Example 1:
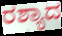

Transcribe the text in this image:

ರಶ್ಯಾದ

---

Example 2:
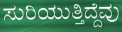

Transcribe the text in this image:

ಸುರಿಯುತ್ತಿದ್ದೆವು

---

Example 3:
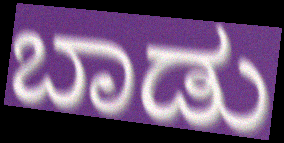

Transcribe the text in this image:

ಬಾಡು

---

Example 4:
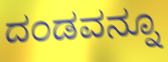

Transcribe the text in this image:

ದಂಡವನ್ನೂ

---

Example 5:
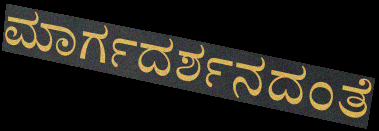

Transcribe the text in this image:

ಮಾರ್ಗದರ್ಶನದಂತೆ